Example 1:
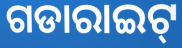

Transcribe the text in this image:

ଗଡାରାଇଟ୍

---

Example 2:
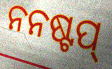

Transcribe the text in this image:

ନନଷ୍ଟପ୍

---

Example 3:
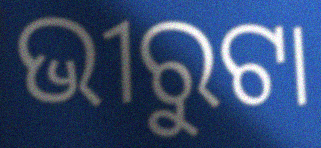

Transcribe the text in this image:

ଭୀରୁଟା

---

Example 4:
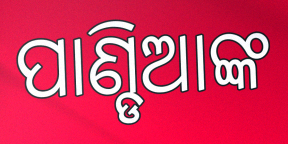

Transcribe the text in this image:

ପାଣ୍ଡିଆଙ୍କ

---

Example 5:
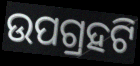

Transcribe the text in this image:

ଉପଗ୍ରହଟି